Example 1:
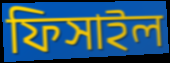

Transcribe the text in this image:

ফিসাইল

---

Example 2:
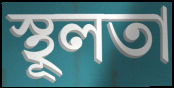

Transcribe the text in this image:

স্থূলতা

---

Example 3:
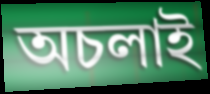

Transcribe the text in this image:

অচলাই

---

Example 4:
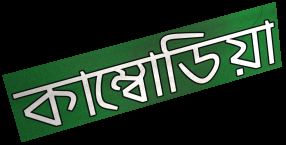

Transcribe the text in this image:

কাম্বোডিয়া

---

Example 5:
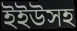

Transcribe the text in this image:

ইইউসহ